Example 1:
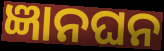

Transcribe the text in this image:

ଜ୍ଞାନଘନ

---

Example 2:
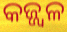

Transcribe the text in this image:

କଜ୍ଜ୍ୱଳ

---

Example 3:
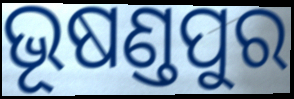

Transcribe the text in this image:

ଭୂଷଣ୍ଡପୁର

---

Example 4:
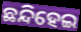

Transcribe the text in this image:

ଛନ୍ଦିହେଇ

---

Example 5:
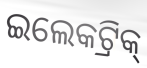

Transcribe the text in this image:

ଇଲେକଟ୍ରିକ୍